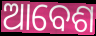
ଆବେଶ